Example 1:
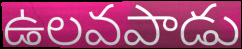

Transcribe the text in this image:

ఉలవపాడు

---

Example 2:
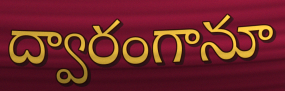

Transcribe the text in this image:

ద్వారంగానూ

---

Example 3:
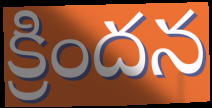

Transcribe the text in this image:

క్రిందన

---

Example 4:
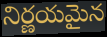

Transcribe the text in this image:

నిర్ణయమైన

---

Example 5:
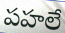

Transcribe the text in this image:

పహలే